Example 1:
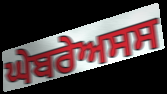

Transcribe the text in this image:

ਘੇਬਰੇਅਸਸ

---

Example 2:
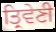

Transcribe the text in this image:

ਤ੍ਰਿਵੇਣੀ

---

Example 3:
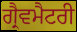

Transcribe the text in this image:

ਗ੍ਰੈਵਮੈਟਰੀ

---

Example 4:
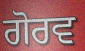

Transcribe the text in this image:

ਗੋਰਵ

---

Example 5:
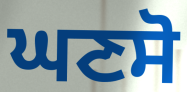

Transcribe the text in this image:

ਘਣਸੋ